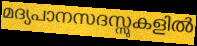
മദ്യപാനസദസ്സുകളിൽ